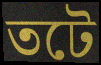
তটে